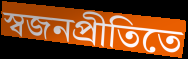
স্বজনপ্রীতিতে